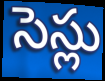
సెస్లు